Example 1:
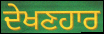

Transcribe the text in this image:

ਦੇਖਣਹਾਰ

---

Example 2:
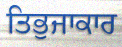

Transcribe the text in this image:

ਤਿਭੁਜਾਕਾਰ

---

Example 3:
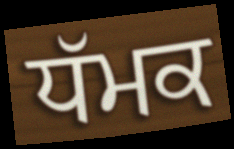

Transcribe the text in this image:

ਧੱਮਕ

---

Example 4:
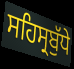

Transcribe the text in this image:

ਸਹਿਸ੍ਰਬੁੱਧੇ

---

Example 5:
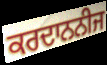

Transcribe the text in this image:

ਕਰਦਾਨਨੀਜ